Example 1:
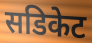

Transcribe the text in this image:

सडिकेट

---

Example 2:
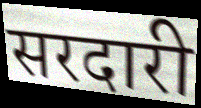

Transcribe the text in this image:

सरदारी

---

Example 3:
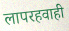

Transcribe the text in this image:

लापरहवाही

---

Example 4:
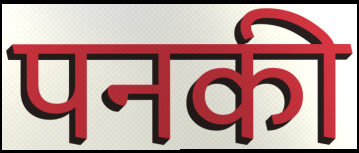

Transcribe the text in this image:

पनकी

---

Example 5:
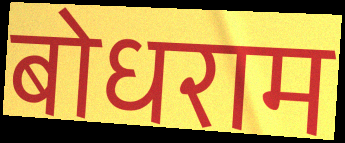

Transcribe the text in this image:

बोधराम